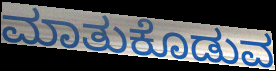
ಮಾತುಕೊಡುವ